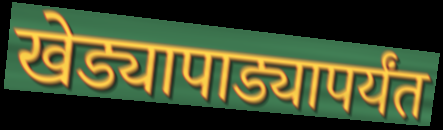
खेड्यापाड्यापर्यंत